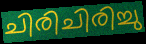
ചിരിചിരിച്ചു